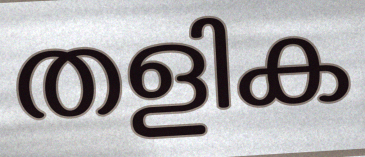
തളിക